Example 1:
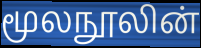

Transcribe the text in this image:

மூலநூலின்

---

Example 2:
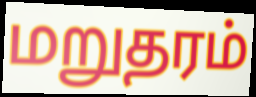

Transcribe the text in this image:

மறுதரம்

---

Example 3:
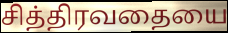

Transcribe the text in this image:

சித்திரவதையை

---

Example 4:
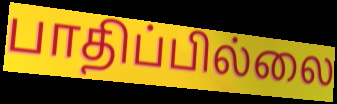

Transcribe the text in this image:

பாதிப்பில்லை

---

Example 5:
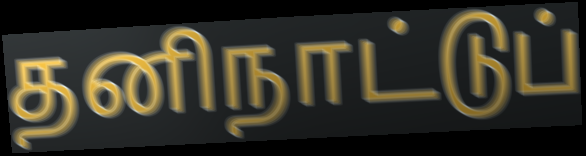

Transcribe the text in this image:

தனிநாட்டுப்